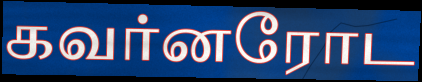
கவர்னரோட